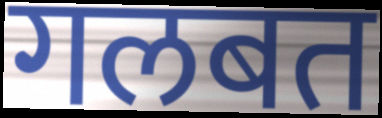
गलबत